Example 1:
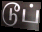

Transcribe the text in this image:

டூப்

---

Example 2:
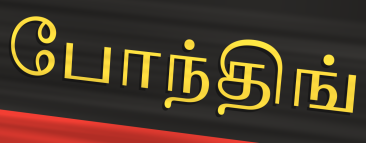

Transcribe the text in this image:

போந்திங்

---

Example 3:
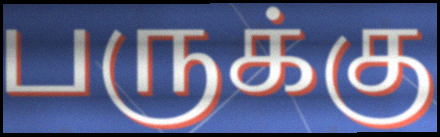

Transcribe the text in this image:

பருக்கு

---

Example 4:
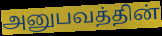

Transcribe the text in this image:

அனுபவத்தின்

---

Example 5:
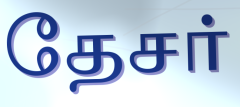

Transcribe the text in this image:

தேசர்